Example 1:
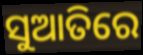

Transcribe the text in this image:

ସୁଆତିରେ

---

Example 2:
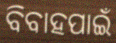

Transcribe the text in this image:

ବିବାହପାଇଁ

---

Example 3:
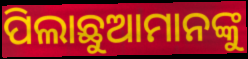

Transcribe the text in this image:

ପିଲାଛୁଆମାନଙ୍କୁ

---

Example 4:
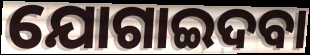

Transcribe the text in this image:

ଯୋଗାଇଦବା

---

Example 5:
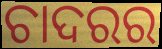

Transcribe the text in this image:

ଚାଦରର